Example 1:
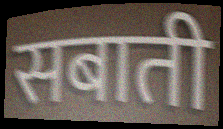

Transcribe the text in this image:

सबाती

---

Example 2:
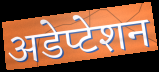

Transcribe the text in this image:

अडेप्टेशन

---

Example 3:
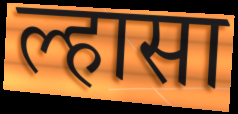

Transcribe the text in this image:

ल्हासा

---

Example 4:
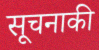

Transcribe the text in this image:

सूचनाकी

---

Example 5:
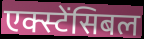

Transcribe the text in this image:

एक्स्टेंसिबल